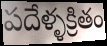
పదేళ్ళక్రితం